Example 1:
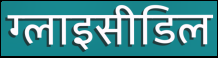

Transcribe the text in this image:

ग्लाइसीडिल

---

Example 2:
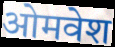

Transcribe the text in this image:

ओमवेश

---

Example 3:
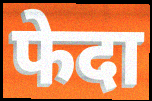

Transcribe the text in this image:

फेदा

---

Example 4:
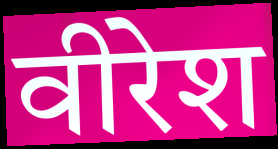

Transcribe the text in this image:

वीरेश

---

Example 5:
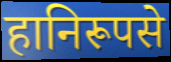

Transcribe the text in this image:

हानिरूपसे